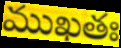
ముఖతః